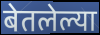
बेतलेल्या